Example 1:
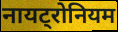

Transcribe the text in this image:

नायट्रोनियम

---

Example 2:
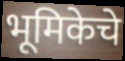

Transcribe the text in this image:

भूमिकेचे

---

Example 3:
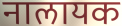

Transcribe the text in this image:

नालायक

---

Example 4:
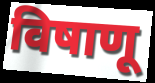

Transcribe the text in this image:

विषाणू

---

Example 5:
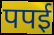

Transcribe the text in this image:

पपई